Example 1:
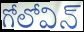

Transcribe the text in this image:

గోలోవిన్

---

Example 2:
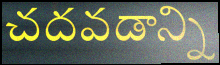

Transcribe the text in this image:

చదవడాన్ని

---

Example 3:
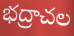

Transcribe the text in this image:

భద్రాచల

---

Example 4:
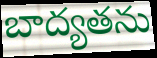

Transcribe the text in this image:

బాద్యతను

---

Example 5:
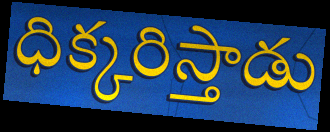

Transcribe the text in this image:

ధిక్కరిస్తాడు